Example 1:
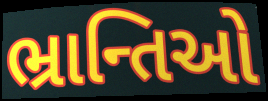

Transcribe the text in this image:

ભ્રાન્તિઓ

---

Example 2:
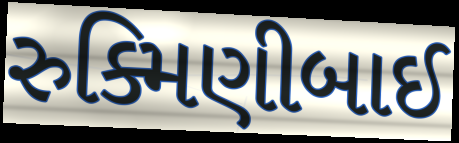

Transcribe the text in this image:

રુક્મિણીબાઈ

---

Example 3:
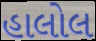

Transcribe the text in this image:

હાલોલ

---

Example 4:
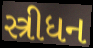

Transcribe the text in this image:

સ્ત્રીધન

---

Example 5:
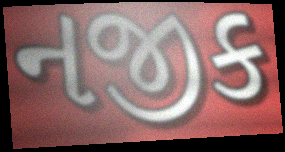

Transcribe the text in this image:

નજીક